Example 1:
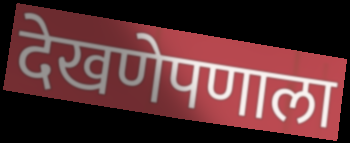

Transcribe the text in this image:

देखणेपणाला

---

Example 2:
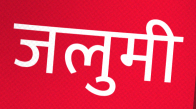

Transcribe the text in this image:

जलुमी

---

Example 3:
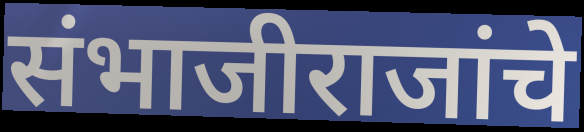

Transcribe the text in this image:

संभाजीराजांचे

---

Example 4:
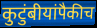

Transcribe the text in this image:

कुटुंबीयांपैकीच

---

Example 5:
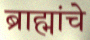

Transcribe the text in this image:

ब्राह्मांचे